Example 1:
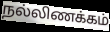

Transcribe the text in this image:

நல்லிணக்கம்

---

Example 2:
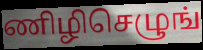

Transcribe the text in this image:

ணிழிசெழுங்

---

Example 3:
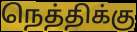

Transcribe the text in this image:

நெத்திக்கு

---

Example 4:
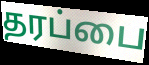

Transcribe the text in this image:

தரப்பை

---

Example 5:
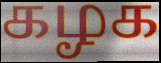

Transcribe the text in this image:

கழக